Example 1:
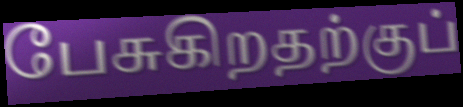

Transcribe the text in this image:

பேசுகிறதற்குப்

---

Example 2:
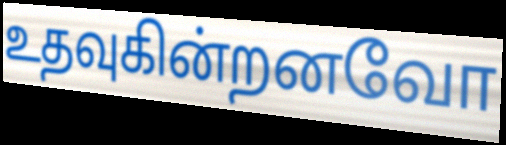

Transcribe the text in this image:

உதவுகின்றனவோ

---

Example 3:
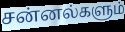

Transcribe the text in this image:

சன்னல்களும்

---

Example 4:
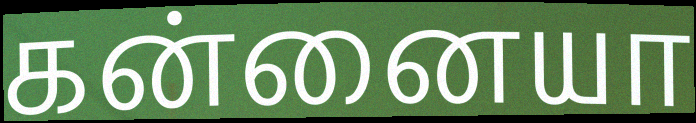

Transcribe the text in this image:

கன்னையா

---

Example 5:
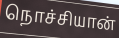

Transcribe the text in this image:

நொச்சியான்